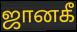
ஜானகீ